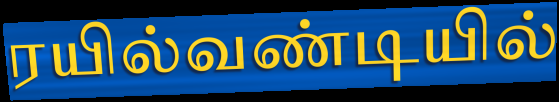
ரயில்வண்டியில்